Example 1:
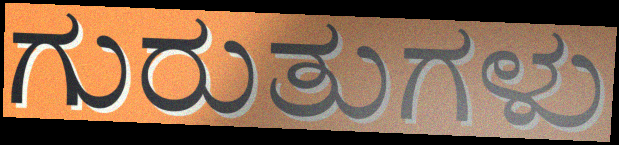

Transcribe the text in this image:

ಗುರುತುಗಳು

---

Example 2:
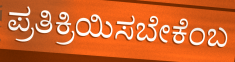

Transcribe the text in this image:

ಪ್ರತಿಕ್ರಿಯಿಸಬೇಕೆಂಬ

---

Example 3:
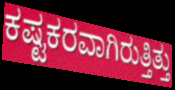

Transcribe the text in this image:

ಕಷ್ಟಕರವಾಗಿರುತ್ತಿತ್ತು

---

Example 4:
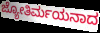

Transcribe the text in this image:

ಜ್ಯೋತಿರ್ಮಯನಾದ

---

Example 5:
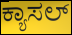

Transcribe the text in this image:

ಕ್ಯಾಸಲ್